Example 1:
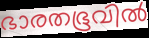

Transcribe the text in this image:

ഭാരതഭൂവിൽ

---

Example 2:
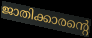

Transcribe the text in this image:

ജാതിക്കാരന്റെ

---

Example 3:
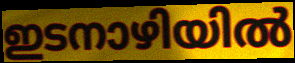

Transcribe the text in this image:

ഇടനാഴിയിൽ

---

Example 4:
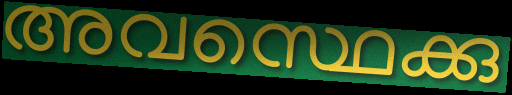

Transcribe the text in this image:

അവസ്ഥെക്കു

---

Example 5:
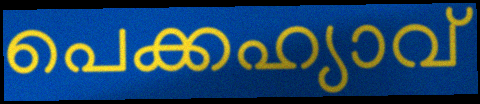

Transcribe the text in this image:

പെക്കഹ്യാവ്